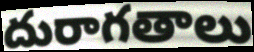
దురాగతాలు